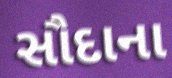
સૌદાના